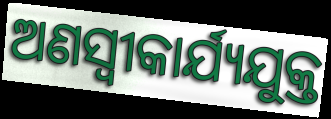
ଅଣସ୍ବୀକାର୍ଯ୍ୟଯୁକ୍ତ